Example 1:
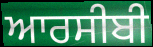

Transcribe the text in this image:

ਆਰਸੀਬੀ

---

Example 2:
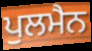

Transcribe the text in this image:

ਪੁਲਮੈਨ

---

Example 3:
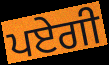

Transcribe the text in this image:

ਪਏਗੀ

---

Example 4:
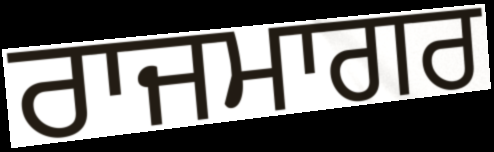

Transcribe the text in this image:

ਰਾਜਮਾਗਰ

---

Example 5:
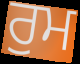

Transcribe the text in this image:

ਰੁਮ